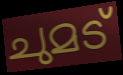
ചുമട്